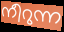
നീറുന്ന